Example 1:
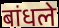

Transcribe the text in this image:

बांधले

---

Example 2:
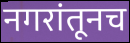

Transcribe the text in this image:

नगरांतूनच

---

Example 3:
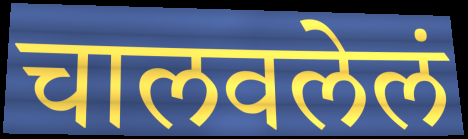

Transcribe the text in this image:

चालवलेलं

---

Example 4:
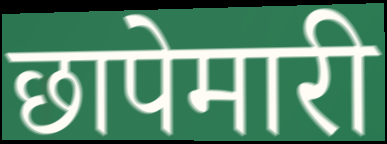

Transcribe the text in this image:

छापेमारी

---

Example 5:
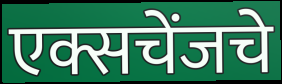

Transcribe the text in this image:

एक्सचेंजचे